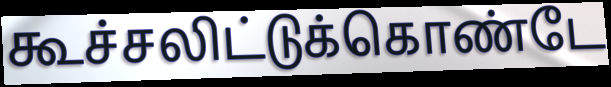
கூச்சலிட்டுக்கொண்டே